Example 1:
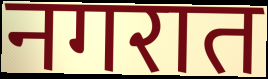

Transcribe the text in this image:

नगरात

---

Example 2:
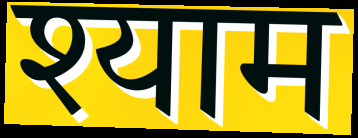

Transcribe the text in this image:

श्‍याम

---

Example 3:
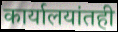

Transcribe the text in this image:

कार्यालयांतही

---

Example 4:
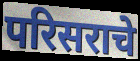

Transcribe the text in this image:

परिसराचे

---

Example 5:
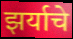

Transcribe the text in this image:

झर्याचे